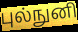
புல்நுனி